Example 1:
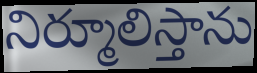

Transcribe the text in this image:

నిర్మూలిస్తాను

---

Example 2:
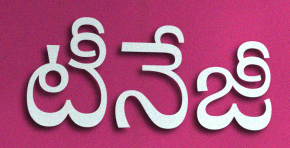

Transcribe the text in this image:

టీనేజీ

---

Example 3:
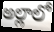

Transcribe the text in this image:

అల్లాలో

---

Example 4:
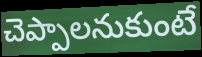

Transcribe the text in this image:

చెప్పాలనుకుంటే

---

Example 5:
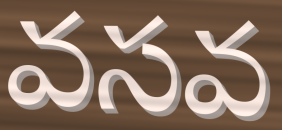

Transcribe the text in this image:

వసవ